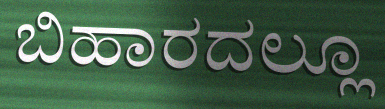
ಬಿಹಾರದಲ್ಲೂ